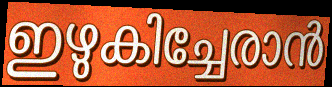
ഇഴുകിച്ചേരാൻ